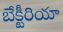
బేక్టీరియా